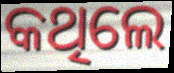
କଥିଲେ